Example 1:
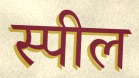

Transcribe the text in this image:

स्पील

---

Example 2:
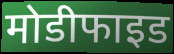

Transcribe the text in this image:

मोडीफाइड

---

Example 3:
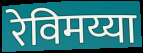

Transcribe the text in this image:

रेविमय्या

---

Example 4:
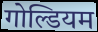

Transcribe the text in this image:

गोल्डियम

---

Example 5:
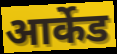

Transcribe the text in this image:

आर्केड